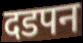
दडपन